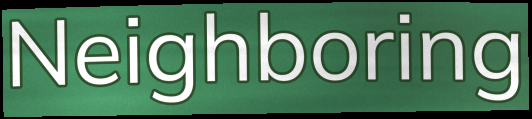
Neighboring